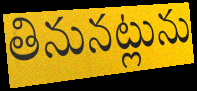
తినునట్లును